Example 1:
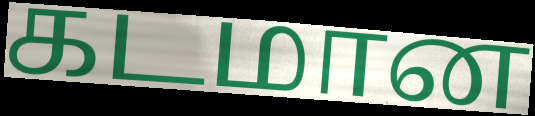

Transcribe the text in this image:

கடமான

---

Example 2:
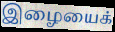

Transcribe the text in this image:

இழையைக்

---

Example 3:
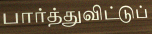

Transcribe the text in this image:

பார்த்துவிட்டுப்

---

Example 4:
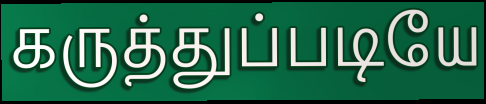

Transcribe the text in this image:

கருத்துப்படியே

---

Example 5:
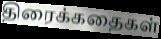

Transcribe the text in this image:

திரைக்கதைகள்